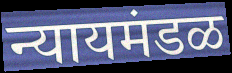
न्यायमंडळ